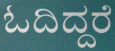
ಓದಿದ್ದರೆ